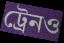
ট্রেনও